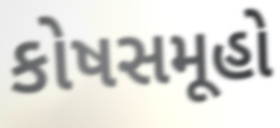
કોષસમૂહો